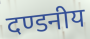
दण्डनीय